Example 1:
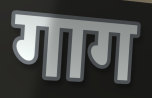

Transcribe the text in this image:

गाग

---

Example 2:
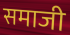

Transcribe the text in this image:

समाजी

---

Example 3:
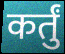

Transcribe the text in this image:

कर्तुं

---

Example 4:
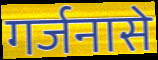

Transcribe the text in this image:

गर्जनासे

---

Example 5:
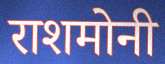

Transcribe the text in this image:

राशमोनी